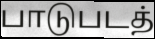
பாடுபடத்